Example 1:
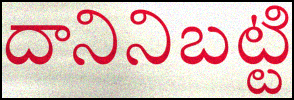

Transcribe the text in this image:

దానినిబట్టి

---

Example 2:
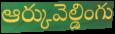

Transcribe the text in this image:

ఆర్కువెల్డింగు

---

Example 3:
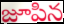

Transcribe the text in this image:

జూపిన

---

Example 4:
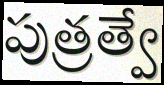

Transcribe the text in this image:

పుత్రత్వే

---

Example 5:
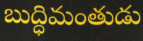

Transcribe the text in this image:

బుద్ధిమంతుడు